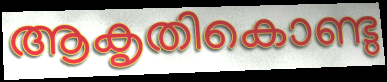
ആകൃതികൊണ്ടു